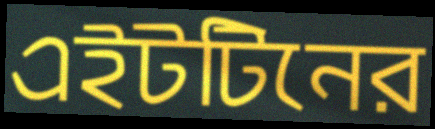
এইটটিনের